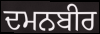
ਦਮਨਬੀਰ